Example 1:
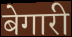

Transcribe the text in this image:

बेगारी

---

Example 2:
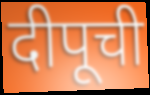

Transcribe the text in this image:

दीपूची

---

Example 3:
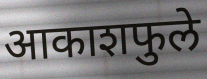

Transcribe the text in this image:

आकाशफुले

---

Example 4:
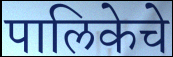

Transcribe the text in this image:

पालिकेचे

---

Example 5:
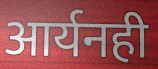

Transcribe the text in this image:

आर्यनही